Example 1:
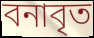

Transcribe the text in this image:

বনাবৃত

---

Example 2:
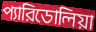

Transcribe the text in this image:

প্যারিডোলিয়া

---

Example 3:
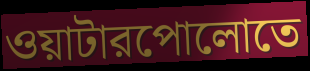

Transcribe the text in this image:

ওয়াটারপোলোতে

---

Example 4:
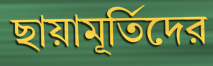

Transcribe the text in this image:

ছায়ামূর্তিদের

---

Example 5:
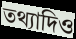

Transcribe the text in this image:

তথ্যাদিও